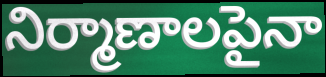
నిర్మాణాలపైనా